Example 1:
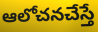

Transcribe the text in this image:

ఆలోచనచేస్తే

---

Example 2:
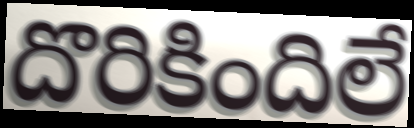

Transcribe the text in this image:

దొరికిందిలే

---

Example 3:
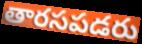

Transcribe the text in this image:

తారసపడరు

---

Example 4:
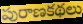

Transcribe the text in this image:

పురాణకథలు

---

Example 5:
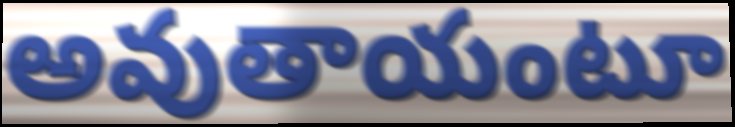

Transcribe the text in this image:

అవుతాయంటూ